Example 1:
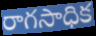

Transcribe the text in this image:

రాగసాధిక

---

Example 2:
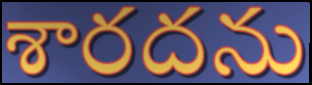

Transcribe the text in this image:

శారదను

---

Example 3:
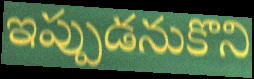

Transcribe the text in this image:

ఇప్పుడనుకొని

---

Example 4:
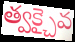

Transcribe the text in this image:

త్వక్చైవ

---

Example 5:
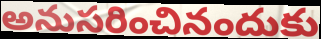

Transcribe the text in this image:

అనుసరించినందుకు